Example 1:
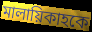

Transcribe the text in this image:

মালায়িকাহকে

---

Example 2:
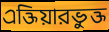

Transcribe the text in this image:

এক্তিয়ারভুক্ত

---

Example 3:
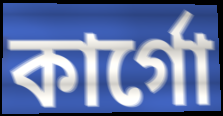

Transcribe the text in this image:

কার্গো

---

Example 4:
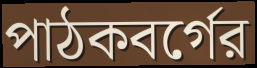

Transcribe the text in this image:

পাঠকবর্গের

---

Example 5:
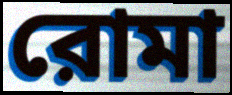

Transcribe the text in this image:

রোমা